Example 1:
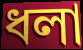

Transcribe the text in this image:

ধলা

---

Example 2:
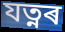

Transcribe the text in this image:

যত্নৰ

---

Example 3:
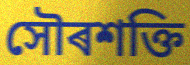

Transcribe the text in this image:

সৌৰশক্তি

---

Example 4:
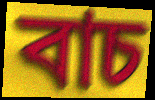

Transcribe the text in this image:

বাচ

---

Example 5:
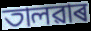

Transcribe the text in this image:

তালৱাৰ